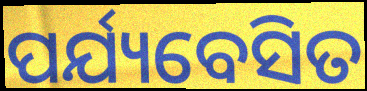
ପର୍ଯ୍ୟବେସିତ